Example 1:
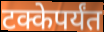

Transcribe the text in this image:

टक्केपर्यंत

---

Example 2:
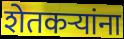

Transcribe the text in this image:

शेतकऱ्यांना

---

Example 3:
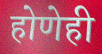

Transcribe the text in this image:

होणेही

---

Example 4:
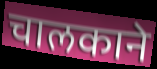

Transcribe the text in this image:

चालकाने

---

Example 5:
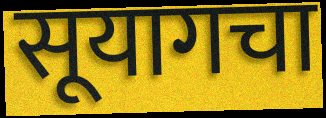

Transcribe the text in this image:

सूयागचा